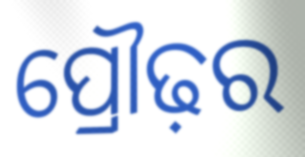
ପ୍ରୌଢ଼ର